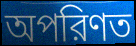
অপরিণত